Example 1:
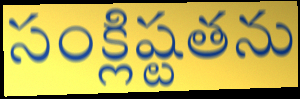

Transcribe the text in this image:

సంక్లిష్టతను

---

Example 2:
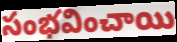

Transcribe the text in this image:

సంభవించాయి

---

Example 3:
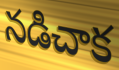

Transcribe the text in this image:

నడిచాక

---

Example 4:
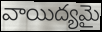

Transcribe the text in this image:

వాయిద్యమై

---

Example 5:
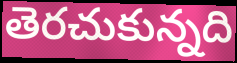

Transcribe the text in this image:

తెరచుకున్నది